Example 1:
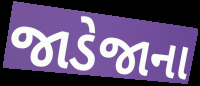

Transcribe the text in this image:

જાડેજાના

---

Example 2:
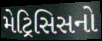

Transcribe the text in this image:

મેટ્રિસિસનો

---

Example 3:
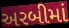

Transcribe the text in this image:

અરબીમાં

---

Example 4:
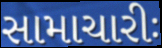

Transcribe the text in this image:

સામાચારીઃ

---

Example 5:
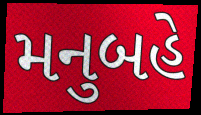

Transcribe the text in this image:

મનુબહે